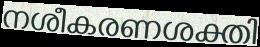
നശീകരണശക്തി